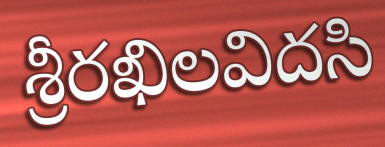
శ్రీరఖిలవిదసి